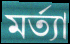
মর্ত্যা